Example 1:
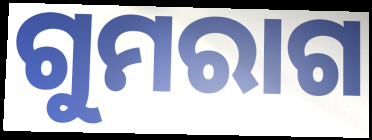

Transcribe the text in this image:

ଗୁମରାଗ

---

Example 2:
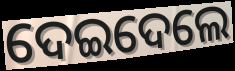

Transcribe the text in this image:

ଦେଇଦେଲେ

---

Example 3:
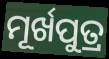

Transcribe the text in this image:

ମୂର୍ଖପୁତ୍ର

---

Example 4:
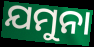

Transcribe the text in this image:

ଯମୁନା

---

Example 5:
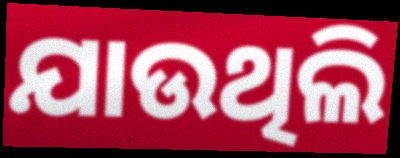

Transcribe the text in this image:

ଯାଉଥିଲି